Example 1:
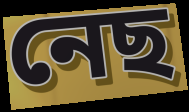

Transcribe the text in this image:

নেছ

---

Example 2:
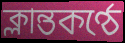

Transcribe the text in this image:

ক্লান্তকণ্ঠে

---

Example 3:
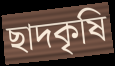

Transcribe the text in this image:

ছাদকৃষি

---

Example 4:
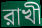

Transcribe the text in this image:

রাখী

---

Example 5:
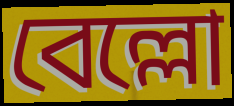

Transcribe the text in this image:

বেল্লো